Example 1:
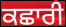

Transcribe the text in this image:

ਕਛਾਰੀ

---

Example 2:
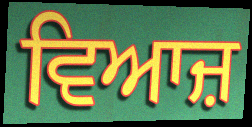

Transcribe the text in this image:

ਵਿਆਜ਼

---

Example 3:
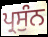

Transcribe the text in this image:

ਪ੍ਰਸੁੰਨ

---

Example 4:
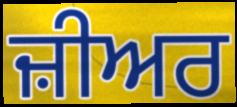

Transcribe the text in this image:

ਜ਼ੀਅਰ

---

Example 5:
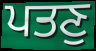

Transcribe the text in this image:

ਪਤਣੁ